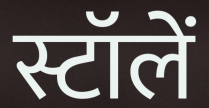
स्टॉलें